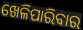
ଖେଳିପାରିବାର